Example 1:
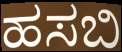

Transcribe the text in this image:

ಹಸಬಿ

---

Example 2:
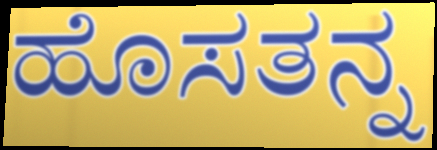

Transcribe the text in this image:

ಹೊಸತನ್ನ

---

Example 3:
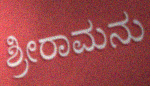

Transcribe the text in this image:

ಶ್ರೀರಾಮನು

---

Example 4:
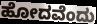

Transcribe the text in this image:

ಹೋದವೆಂದು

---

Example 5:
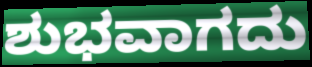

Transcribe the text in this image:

ಶುಭವಾಗದು